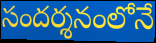
సందర్శనంలోనే